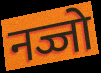
नज्जो